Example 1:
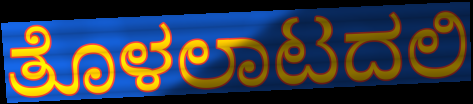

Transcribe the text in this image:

ತೊಳಲಾಟದಲಿ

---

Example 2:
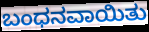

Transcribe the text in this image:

ಬಂಧನವಾಯಿತು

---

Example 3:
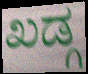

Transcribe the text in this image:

ಖಡ್ಗ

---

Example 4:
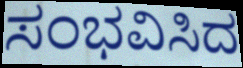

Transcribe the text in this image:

ಸಂಭವಿಸಿದ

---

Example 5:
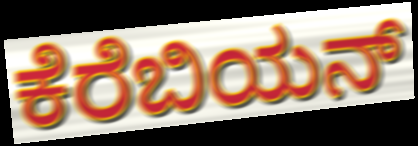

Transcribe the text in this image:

ಕೆರೆಬಿಯನ್